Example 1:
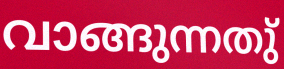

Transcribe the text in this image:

വാങ്ങുന്നതു്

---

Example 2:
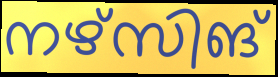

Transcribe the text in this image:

നഴ്സിങ്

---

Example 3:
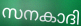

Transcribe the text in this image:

സനകാദി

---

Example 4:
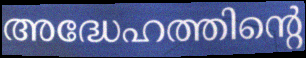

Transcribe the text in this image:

അദ്ധേഹത്തിന്റെ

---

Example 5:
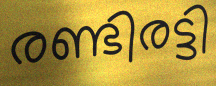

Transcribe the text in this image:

രണ്ടിരട്ടി